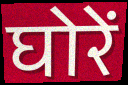
घोरें